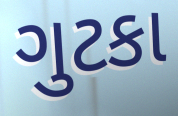
ગુટકા